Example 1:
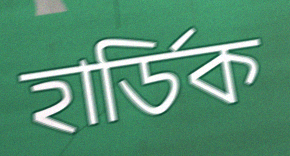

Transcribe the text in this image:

হাৰ্ডিক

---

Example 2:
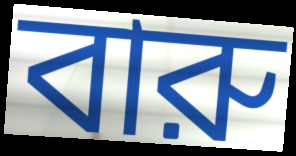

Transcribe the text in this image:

বাৰু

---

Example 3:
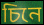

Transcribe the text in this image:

চিনে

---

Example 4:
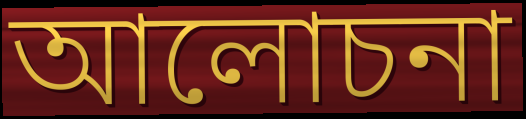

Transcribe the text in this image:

আলোচনা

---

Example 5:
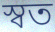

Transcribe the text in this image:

স্বত